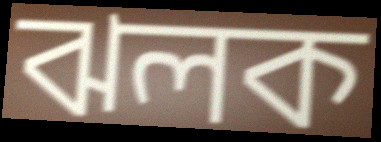
ঝলক